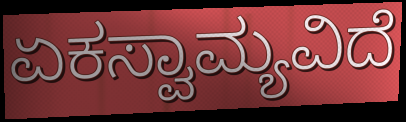
ಏಕಸ್ವಾಮ್ಯವಿದೆ